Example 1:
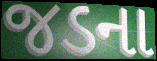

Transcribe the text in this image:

જડના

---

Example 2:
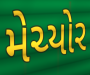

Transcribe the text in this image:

મેચ્યોર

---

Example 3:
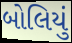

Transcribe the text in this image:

બોલિયું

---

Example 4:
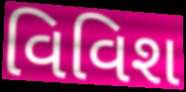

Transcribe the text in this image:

વિવિશ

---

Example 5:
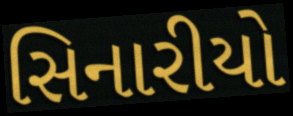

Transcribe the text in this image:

સિનારીયો